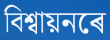
বিশ্বায়নৰে